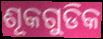
ଶୂକଗୁଡିକ